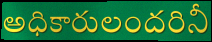
అధికారులందరినీ